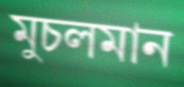
মুচলমান